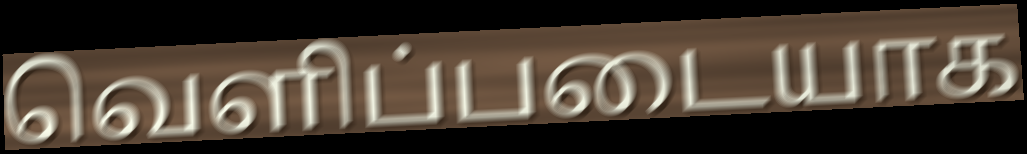
வெளிப்படையாக